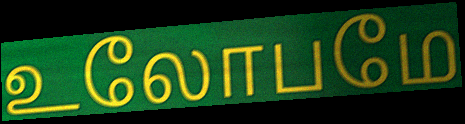
உலோபமே